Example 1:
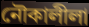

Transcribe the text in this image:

নৌকালীলা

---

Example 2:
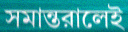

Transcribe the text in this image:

সমান্তরালেই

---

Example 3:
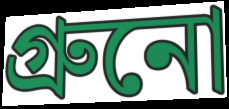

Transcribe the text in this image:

গ্রুনো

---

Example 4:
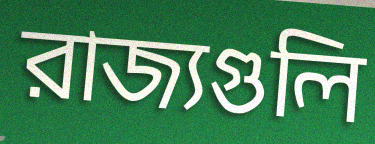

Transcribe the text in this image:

রাজ্যগুলি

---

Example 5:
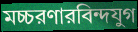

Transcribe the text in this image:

মচ্চরণারবিন্দযুগ